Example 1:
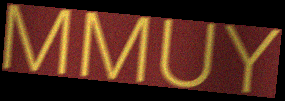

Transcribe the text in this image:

MMUY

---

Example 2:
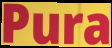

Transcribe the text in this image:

Pura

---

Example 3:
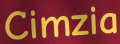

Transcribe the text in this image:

Cimzia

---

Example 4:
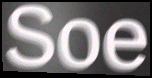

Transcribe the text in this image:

Soe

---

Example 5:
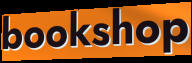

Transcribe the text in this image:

bookshop